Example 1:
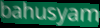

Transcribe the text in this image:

bahusyam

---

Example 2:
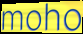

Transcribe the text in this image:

moho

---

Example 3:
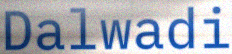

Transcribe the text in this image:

Dalwadi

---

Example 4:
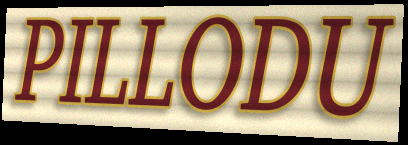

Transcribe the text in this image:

PILLODU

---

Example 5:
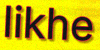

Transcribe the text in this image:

likhe